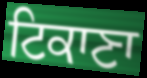
ਟਿਕਾਣਾ